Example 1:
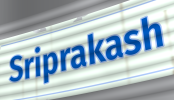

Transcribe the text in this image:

Sriprakash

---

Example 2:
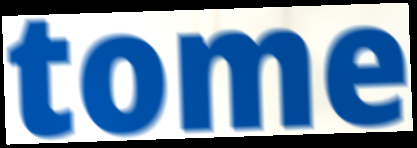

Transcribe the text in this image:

tome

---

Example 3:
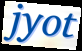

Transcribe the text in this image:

jyot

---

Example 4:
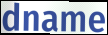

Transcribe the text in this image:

dname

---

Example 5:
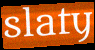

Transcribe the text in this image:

slaty